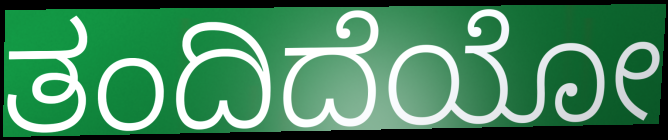
ತಂದಿದೆಯೋ